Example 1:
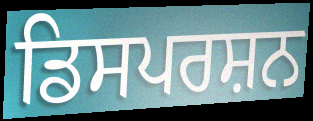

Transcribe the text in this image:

ਡਿਸਪਰਸ਼ਨ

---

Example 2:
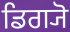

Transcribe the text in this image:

ਡਿਗ੍ਯੋ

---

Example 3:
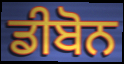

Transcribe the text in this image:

ਡੀਬੋਨ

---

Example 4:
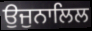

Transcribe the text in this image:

ਉਜੁਨਾਲਿਲ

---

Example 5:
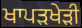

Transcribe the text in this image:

ਖਾਪੜਖੇੜੀ